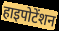
हाइपोटेंशन